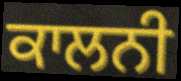
ਕਾਲਨੀ